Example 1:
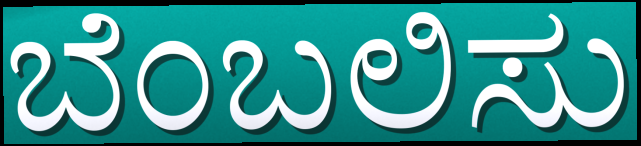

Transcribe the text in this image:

ಬೆಂಬಲಿಸು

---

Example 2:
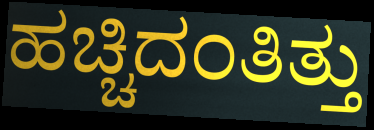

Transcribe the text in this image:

ಹಚ್ಚಿದಂತಿತ್ತು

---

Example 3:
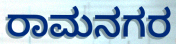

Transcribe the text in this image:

ರಾಮನಗರ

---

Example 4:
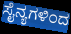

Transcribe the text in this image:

ಸೈನ್ಯಗಳಿಂದ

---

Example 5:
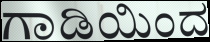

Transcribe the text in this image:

ಗಾಡಿಯಿಂದ